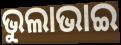
ଭୁଲାଭାଇ